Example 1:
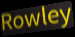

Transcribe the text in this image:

Rowley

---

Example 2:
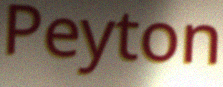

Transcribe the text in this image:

Peyton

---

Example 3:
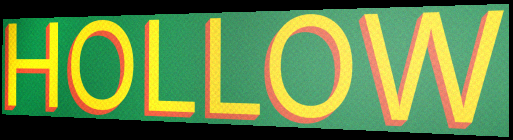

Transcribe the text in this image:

HOLLOW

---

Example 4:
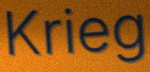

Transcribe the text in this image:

Krieg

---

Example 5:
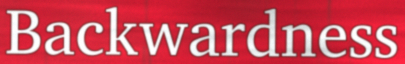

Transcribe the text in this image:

Backwardness